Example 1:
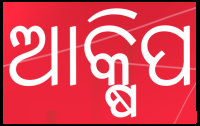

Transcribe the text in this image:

ଆକ୍ଷିପ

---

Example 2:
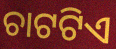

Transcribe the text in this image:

ଚାଟଟିଏ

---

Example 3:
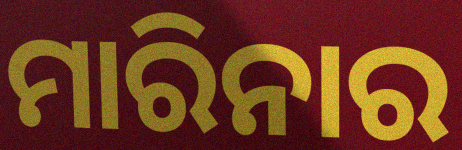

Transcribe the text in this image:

ମାରିନାର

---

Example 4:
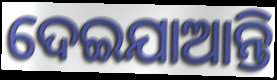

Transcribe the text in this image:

ଦେଇଯାଆନ୍ତି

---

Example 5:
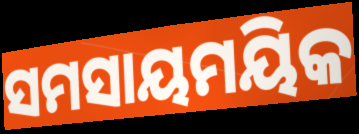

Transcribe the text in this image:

ସମସାୟମୟିକ